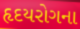
હૃદયરોગના